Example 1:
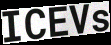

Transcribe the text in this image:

ICEVs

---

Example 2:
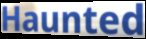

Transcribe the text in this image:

Haunted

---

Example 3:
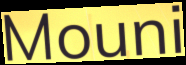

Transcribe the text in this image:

Mouni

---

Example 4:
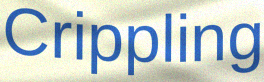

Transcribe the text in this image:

Crippling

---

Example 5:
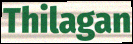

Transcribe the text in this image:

Thilagan